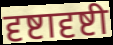
दृष्टादृष्टी